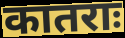
कातराः